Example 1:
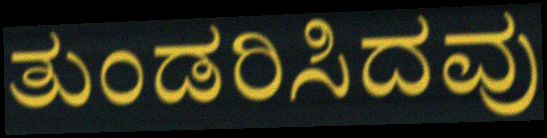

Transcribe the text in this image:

ತುಂಡರಿಸಿದವು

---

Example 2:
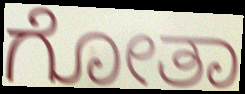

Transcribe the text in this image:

ಗೋತಾ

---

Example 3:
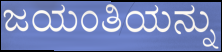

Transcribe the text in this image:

ಜಯಂತಿಯನ್ನು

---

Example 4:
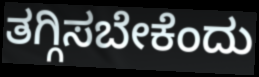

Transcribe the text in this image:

ತಗ್ಗಿಸಬೇಕೆಂದು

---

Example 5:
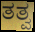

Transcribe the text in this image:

ತತ್ವ